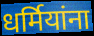
धर्मियांना